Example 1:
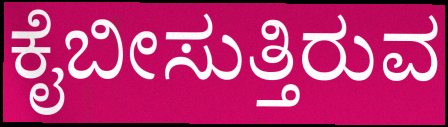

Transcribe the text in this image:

ಕೈಬೀಸುತ್ತಿರುವ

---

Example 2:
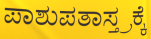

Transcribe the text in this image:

ಪಾಶುಪತಾಸ್ತ್ರಕ್ಕೆ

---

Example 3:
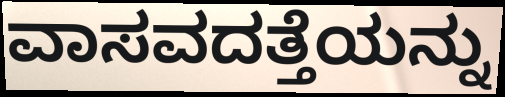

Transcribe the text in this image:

ವಾಸವದತ್ತೆಯನ್ನು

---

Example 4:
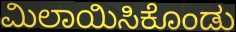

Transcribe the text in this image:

ಮಿಲಾಯಿಸಿಕೊಂಡು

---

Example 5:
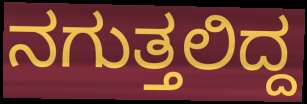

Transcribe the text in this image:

ನಗುತ್ತಲಿದ್ದ